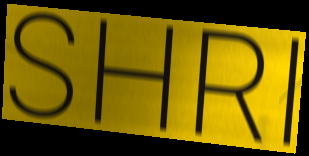
SHRI